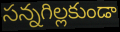
సన్నగిల్లకుండా